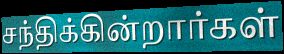
சந்திக்கின்றார்கள்